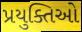
પ્રયુક્તિઓ